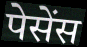
पेसेंस